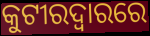
କୁଟୀରଦ୍ୱାରରେ